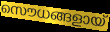
സൌധങ്ങളായ്